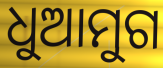
ଧୁଆମୁଗ